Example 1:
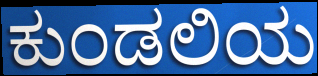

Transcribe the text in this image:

ಕುಂಡಲಿಯ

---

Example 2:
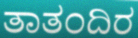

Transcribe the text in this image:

ತಾತಂದಿರ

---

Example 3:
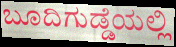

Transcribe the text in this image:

ಬೂದಿಗುಡ್ಡೆಯಲ್ಲಿ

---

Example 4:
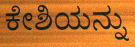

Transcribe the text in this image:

ಕೇಶಿಯನ್ನು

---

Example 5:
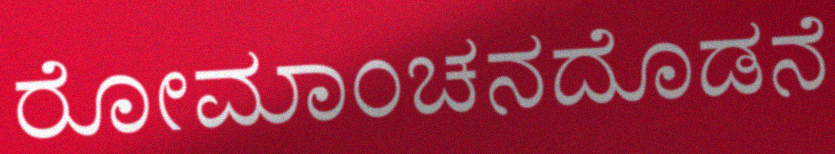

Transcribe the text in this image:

ರೋಮಾಂಚನದೊಡನೆ